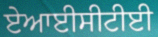
ਏਆਈਸੀਟੀਈ